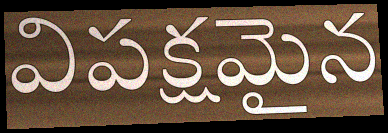
విపక్షమైన